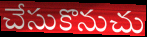
చేసుకొనుచు